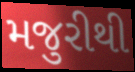
મજુરીથી